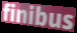
finibus